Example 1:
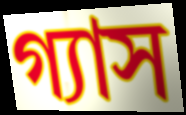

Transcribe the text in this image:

গ্যাস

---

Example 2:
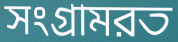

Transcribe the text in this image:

সংগ্রামরত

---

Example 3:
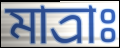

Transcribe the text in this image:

মাত্রাঃ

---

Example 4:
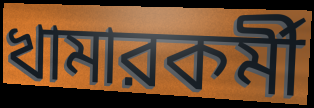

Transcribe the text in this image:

খামারকর্মী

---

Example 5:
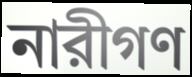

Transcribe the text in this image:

নারীগণ